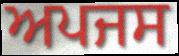
ਅਪਜਸ